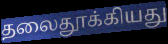
தலைதூக்கியது